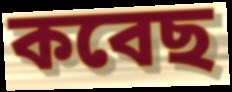
কবেছ